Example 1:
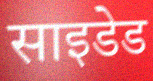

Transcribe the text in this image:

साइडेड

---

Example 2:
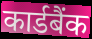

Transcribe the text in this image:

कार्डबैंक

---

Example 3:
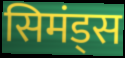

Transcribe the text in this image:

सिमंड्स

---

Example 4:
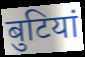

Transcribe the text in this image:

बुटियां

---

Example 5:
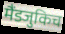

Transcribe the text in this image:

मैंडजुकिच